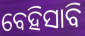
ବେହିସାବି